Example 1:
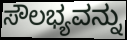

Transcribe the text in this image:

ಸೌಲಭ್ಯವನ್ನು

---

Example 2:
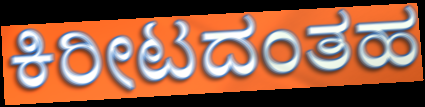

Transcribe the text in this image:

ಕಿರೀಟದಂತಹ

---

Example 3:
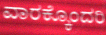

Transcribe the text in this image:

ವಾರಕ್ಕೊಂದರಿ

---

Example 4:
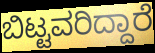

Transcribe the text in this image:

ಬಿಟ್ಟವರಿದ್ದಾರೆ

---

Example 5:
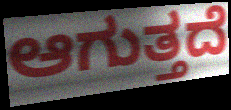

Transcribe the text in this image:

ಆಗುತ್ತದೆ